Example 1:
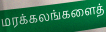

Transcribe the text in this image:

மரக்கலங்களைத்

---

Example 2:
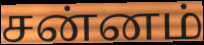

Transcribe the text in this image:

சன்னம்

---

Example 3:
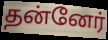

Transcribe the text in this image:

தன்னேர்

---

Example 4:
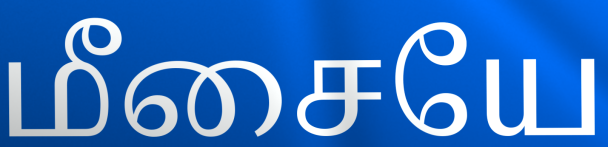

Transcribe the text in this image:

மீசையே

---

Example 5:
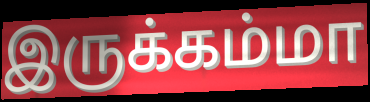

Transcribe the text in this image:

இருக்கம்மா